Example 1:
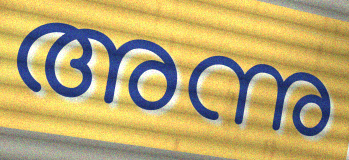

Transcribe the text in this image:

അന്നു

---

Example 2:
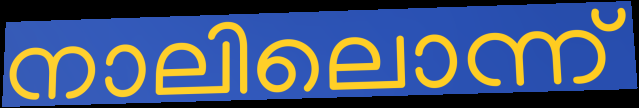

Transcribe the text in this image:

നാലിലൊന്ന്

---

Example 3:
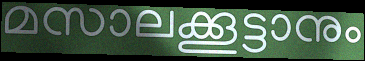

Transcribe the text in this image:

മസാലക്കൂട്ടാനും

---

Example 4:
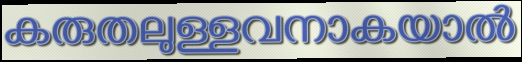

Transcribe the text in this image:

കരുതലുള്ളവനാകയാൽ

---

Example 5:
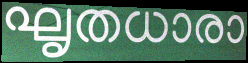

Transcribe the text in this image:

ഘൃതധാരാ